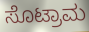
ಸೊಟ್ರಾಮ